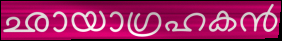
ഛായാഗ്രഹകൻ